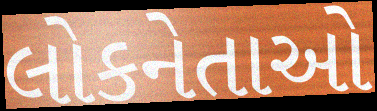
લોકનેતાઓ